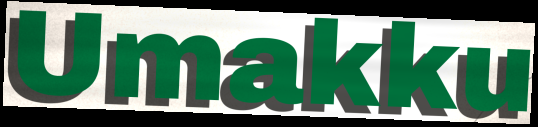
Umakku